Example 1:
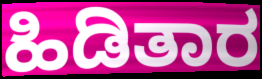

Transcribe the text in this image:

ಹಿಡಿತಾರ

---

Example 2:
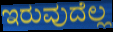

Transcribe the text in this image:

ಇರುವುದೆಲ್ಲ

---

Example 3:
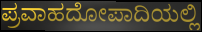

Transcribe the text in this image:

ಪ್ರವಾಹದೋಪಾದಿಯಲ್ಲಿ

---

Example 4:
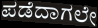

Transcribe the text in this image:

ಪಡೆದಾಗಲೇ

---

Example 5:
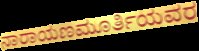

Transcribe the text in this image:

ನಾರಾಯಣಮೂರ್ತಿಯವರ